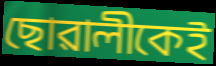
ছোৱালীকেই